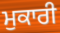
ਮੁਕਾਰੀ